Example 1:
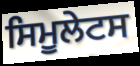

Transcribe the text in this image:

ਸਿਮੂਲੇਟਸ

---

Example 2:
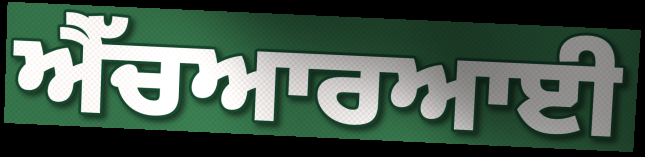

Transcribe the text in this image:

ਐੱਚਆਰਆਈ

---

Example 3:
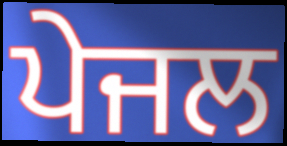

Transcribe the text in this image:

ਪੇਜਲ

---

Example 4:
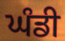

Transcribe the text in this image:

ਘੰਡੀ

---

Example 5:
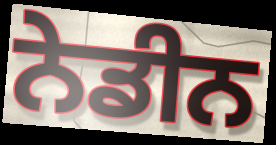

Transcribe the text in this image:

ਨੇਡੀਨ